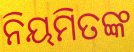
ନିୟମିତଙ୍କ